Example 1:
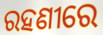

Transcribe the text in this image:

ରହଣୀରେ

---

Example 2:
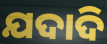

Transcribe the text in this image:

ଯଦାଦି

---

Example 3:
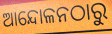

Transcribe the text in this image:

ଆନ୍ଦୋଳନଠାରୁ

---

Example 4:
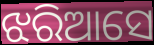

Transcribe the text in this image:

ଝରିଆସେ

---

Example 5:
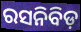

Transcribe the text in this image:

ରସନିବିଡ଼